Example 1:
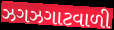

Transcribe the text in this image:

ઝગઝગાટવાળી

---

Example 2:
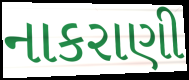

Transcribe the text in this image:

નાકરાણી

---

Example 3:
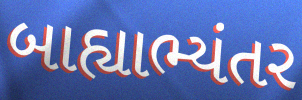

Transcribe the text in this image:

બાહ્યાભ્યંતર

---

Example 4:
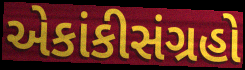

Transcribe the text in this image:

એકાંકીસંગ્રહો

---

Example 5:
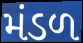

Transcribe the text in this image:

મંડળ